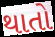
થાતો